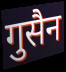
गुसैन